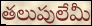
తలుపులేమీ